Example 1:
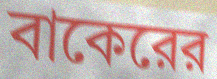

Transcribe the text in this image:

বাকেরের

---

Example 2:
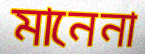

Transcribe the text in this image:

মানেনা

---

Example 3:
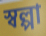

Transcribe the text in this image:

স্বল্পা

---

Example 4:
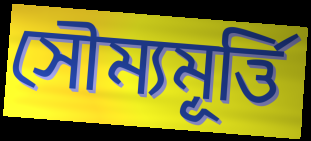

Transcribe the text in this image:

সৌম্যমূর্ত্তি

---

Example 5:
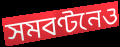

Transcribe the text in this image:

সমবণ্টনেও